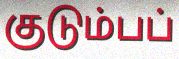
குடும்பப்